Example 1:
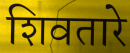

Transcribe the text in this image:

शिवतारे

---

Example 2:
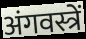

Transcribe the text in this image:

अंगवस्त्रें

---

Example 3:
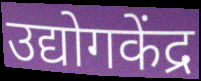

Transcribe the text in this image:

उद्योगकेंद्र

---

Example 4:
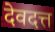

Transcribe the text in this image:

देवदत्त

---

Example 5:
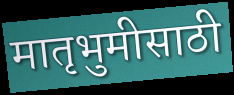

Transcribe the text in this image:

मातृभुमीसाठी